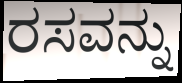
ರಸವನ್ನು